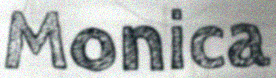
Monica